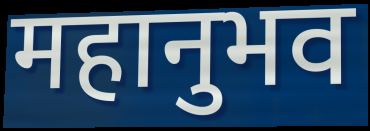
महानुभव